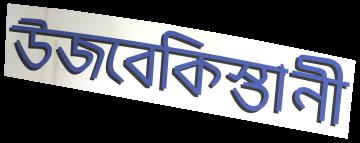
উজবেকিস্তানী